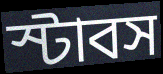
স্টাবস